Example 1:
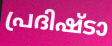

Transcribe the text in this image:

പ്രദിഷ്ടാ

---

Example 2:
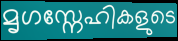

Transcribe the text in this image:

മൃഗസ്നേഹികളുടെ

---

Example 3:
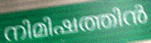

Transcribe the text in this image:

നിമിഷത്തിൻ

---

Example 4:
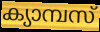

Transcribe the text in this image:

ക്യാമ്പസ്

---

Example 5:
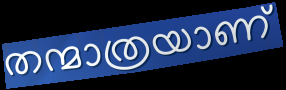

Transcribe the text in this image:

തന്മാത്രയാണ്